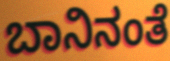
ಬಾನಿನಂತೆ